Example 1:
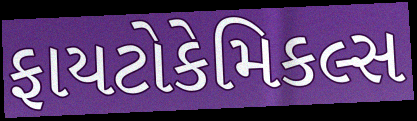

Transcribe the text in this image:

ફાયટોકેમિકલ્સ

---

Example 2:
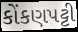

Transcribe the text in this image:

કોંકણપટ્ટી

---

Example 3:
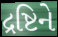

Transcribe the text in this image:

દ્રષ્ટિને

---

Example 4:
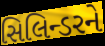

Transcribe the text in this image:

સિલિન્ડરને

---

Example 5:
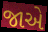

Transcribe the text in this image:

જાએ